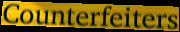
Counterfeiters